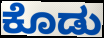
ಕೊಡು